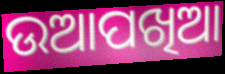
ଉଆପଖିଆ